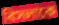
বিসলাকে